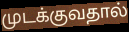
முடக்குவதால்